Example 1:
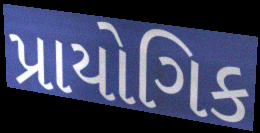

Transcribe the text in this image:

પ્રાયોગિક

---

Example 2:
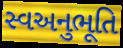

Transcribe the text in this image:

સ્વઅનુભૂતિ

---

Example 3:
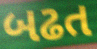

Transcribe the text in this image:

બઢત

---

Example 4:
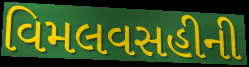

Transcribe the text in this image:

વિમલવસહીની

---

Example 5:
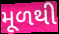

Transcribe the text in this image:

મૂળથી